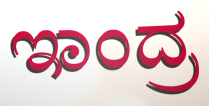
ಇಾಂದ್ರ